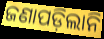
ଜଣାପଡ଼ିଲାନି